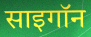
साइगॉन